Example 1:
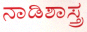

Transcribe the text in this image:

ನಾಡಿಶಾಸ್ತ್ರ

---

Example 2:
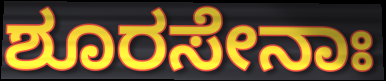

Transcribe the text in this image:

ಶೂರಸೇನಾಃ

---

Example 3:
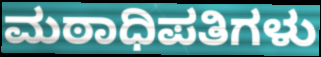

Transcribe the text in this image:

ಮಠಾಧಿಪತಿಗಳು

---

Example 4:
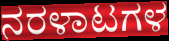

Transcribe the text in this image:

ನರಳಾಟಗಳ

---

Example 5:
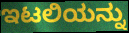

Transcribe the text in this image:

ಇಟಲಿಯನ್ನು